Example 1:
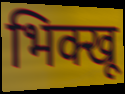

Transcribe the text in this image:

भिक्खू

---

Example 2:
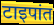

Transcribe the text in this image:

टाइपांत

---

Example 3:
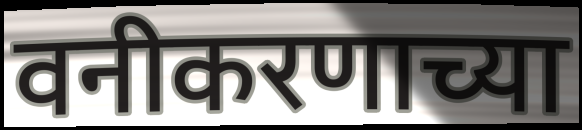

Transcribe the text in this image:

वनीकरणाच्या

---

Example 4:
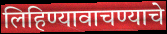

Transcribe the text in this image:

लिहिण्यावाचण्याचे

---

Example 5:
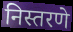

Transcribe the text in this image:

निस्तरणे